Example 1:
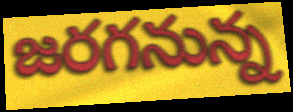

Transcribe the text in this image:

జరగనున్న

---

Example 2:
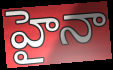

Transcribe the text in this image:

హైనా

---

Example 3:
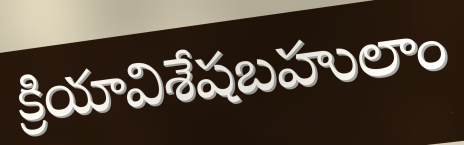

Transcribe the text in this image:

క్రియావిశేషబహులాం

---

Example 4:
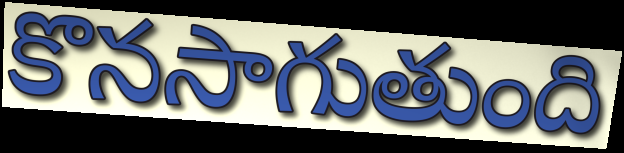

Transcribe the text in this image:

కొనసాగుతుంది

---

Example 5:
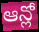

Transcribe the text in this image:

ఆన్లో